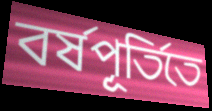
বর্ষপূর্তিতে